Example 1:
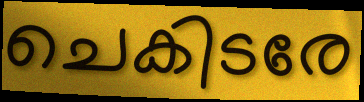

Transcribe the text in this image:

ചെകിടരേ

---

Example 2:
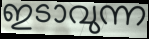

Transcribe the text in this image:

ഇടാവുന്ന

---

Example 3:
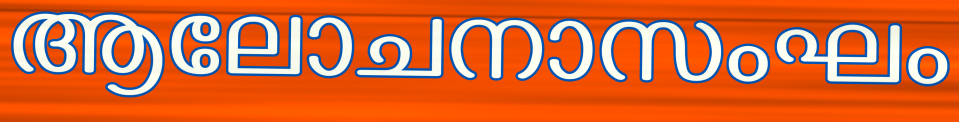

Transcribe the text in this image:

ആലോചനാസംഘം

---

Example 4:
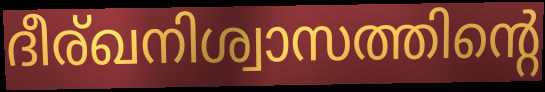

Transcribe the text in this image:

ദീര്ഖനിശ്വാസത്തിന്റെ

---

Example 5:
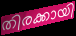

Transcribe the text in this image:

തിരക്കായി